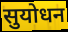
सुयोधन